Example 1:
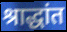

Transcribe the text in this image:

श्राद्धांत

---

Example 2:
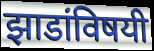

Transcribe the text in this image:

झाडांविषयी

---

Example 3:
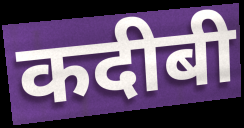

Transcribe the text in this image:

कदीबी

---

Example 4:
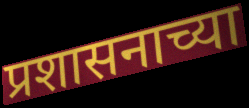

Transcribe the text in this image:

प्रशासनाच्या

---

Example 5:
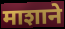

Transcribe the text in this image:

माशाने